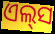
ଏଲ୍‌ସ